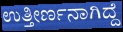
ಉತ್ತೀರ್ಣನಾಗಿದ್ದೆ